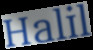
Halil